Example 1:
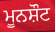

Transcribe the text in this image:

ਮੂਨਸ਼ੌਟ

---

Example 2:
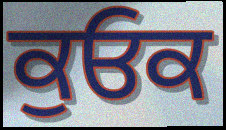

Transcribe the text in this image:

ਕੁਓਕ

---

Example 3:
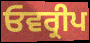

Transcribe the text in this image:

ਓਵਰ੍ਰੀਪ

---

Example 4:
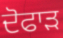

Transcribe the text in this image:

ਦੋਫਾੜ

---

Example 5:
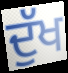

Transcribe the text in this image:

ਦੁੱਖ